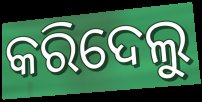
କରିଦେଲୁ